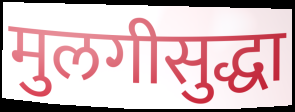
मुलगीसुद्धा